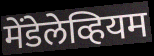
मेंडेलेव्हियम